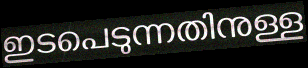
ഇടപെടുന്നതിനുള്ള